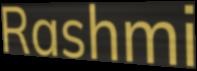
Rashmi